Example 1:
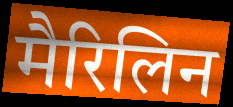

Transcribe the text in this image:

मैरिलिन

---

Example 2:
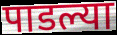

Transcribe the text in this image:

पाडल्या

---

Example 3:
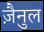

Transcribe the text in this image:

ज़ैनुल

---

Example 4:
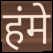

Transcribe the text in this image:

हंमे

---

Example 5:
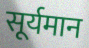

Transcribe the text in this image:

सूर्यमान